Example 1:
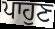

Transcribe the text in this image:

ਪਾਹੁਣ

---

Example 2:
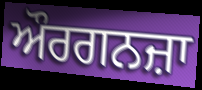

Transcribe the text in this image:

ਔਰਗਨਜ਼ਾ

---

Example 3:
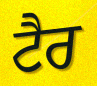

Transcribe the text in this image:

ਟੈਰ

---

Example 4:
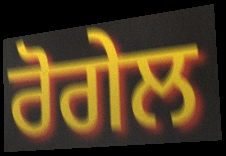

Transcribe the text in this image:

ਰੋਗੇਲ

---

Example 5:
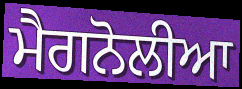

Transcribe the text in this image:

ਮੈਗਨੋਲੀਆ